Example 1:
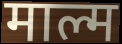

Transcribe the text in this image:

माल्म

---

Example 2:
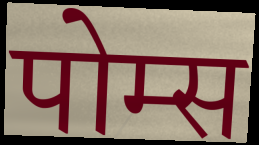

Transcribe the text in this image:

पोम्स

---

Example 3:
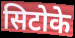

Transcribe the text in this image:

सिटोके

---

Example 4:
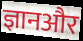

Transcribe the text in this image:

ज्ञानऔर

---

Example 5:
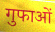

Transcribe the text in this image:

गुफाओं